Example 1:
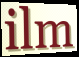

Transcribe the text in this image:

ilm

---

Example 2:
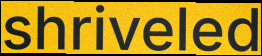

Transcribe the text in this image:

shriveled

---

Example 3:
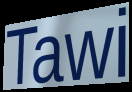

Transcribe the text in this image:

Tawi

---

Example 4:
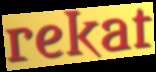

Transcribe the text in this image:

rekat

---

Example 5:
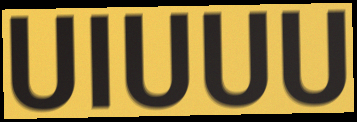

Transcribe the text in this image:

UIUUU